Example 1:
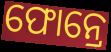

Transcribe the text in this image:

ଫୋନ୍ରେ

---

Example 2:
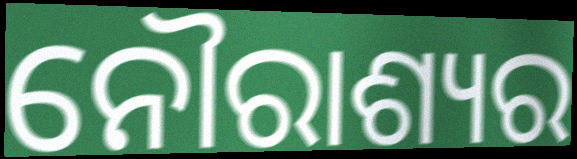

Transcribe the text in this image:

ନୌରାଶ୍ୟର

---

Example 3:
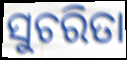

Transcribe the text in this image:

ସୁଚରିତା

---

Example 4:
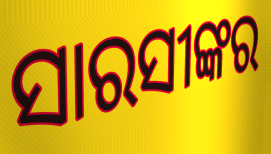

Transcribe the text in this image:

ସାରସୀଙ୍କର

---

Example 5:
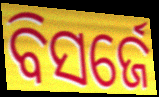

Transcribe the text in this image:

ବିସର୍ଜେ